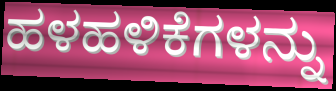
ಹಳಹಳಿಕೆಗಳನ್ನು